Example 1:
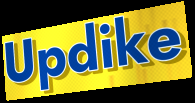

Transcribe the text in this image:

Updike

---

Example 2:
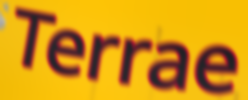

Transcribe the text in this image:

Terrae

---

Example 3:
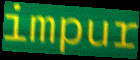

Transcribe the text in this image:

impur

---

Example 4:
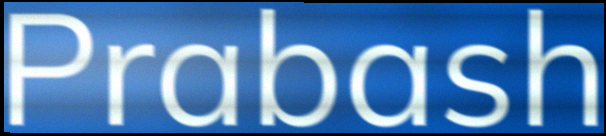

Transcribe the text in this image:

Prabash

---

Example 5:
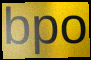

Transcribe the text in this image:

bpo